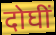
दोघीं